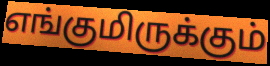
எங்குமிருக்கும்